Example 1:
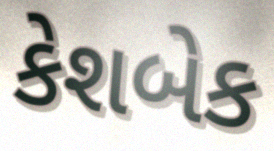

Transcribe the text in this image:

કેશબેક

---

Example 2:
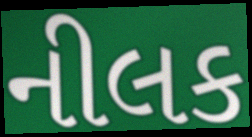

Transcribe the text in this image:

નીલક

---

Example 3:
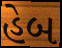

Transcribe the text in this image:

હેબ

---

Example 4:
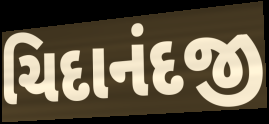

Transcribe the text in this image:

ચિદાનંદજી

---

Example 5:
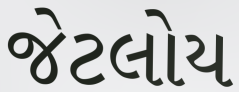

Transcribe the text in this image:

જેટલોય